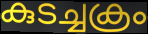
കുടച്ചക്രം